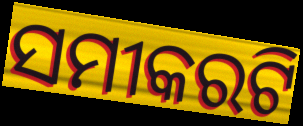
ସମୀକରଟି